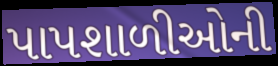
પાપશાળીઓની